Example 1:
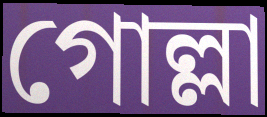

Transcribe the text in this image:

গোল্লা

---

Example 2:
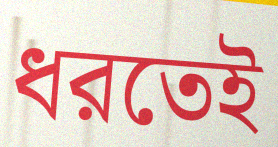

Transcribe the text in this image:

ধরতেই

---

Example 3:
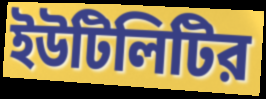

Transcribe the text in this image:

ইউটিলিটির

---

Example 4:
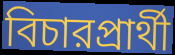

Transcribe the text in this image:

বিচারপ্রার্থী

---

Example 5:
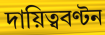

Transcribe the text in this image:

দায়িত্ববণ্টন